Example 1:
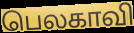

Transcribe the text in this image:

பெலகாவி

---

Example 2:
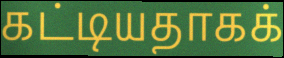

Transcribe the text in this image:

கட்டியதாகக்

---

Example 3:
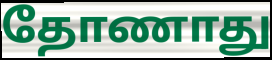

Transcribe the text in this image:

தோணாது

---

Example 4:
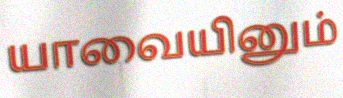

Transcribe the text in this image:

யாவையினும்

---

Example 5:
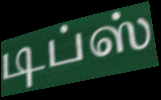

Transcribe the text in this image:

டிப்ஸ்